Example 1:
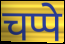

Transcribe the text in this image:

चप्पे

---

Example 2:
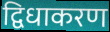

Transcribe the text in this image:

द्विधाकरण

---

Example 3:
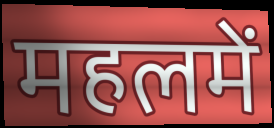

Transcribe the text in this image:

महलमें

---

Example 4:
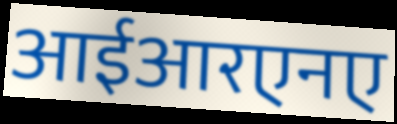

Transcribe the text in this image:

आईआरएनए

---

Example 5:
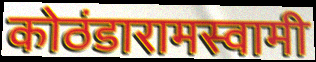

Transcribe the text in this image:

कोठंडारामस्वामी